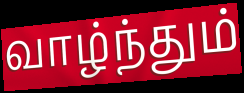
வாழ்ந்தும்